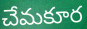
చేమకూర